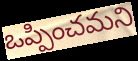
ఒప్పించమని